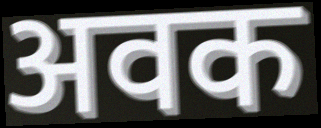
अवक